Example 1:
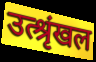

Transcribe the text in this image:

उत्श्रृंखल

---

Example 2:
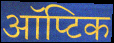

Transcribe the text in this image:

ऑप्टिक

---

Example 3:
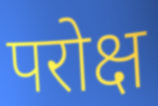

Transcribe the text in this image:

परोक्ष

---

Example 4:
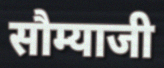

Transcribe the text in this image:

सौम्याजी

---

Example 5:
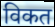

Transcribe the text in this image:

विकत